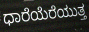
ಧಾರೆಯೆರೆಯುತ್ತ